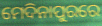
ମେଦିନାପୁରରେ